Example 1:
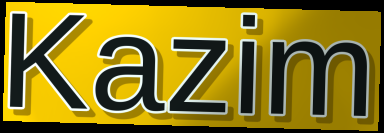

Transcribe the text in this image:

Kazim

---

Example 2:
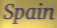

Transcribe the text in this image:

Spain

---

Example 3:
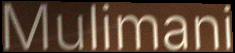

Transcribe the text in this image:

Mulimani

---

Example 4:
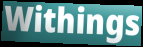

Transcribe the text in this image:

Withings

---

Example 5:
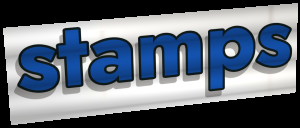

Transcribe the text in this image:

stamps